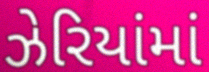
ઝેરિયાંમાં